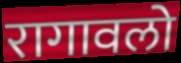
रागावलो